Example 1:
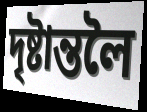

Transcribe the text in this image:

দৃষ্টান্তলৈ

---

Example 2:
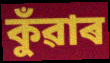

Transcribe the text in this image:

কুঁৱাৰ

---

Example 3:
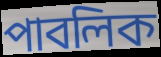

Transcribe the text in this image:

পাবলিক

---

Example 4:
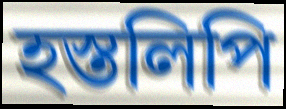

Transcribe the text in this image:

হস্তলিপি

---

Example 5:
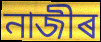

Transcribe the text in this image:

নাজীৰ